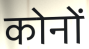
कोनों